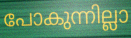
പോകുന്നില്ലാ